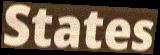
States